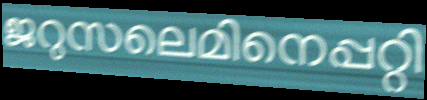
ജറുസലെമിനെപ്പറ്റി